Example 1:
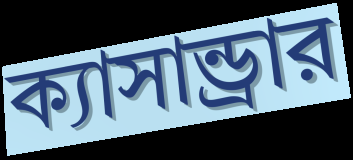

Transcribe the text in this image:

ক্যাসান্ড্রার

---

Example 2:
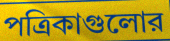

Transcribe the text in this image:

পত্রিকাগুলোর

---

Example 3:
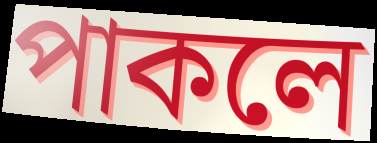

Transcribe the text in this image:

পাকলে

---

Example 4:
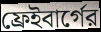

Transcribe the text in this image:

ফ্রেইবার্গের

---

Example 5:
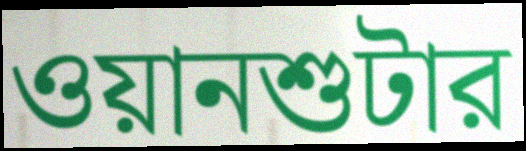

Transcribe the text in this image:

ওয়ানশুটার